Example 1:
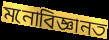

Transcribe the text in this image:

মনোবিজ্ঞানত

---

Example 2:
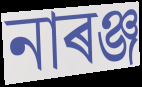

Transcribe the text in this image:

নাৰঞ্জ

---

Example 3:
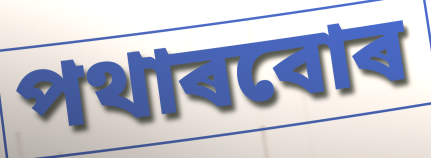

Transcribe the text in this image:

পথাৰবোৰ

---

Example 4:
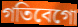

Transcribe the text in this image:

গতিবেগো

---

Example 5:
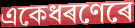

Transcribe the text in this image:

একেধৰণেৰে